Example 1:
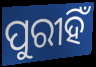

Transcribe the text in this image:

ପୁରୀହିଁ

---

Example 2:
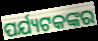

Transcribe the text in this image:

ପର୍ଯ୍ୟଟକଙ୍କର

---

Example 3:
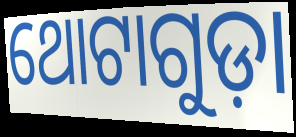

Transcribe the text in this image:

ଥୋଟାଗୁଡ଼ା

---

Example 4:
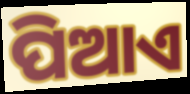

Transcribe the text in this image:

ପିଆଏ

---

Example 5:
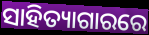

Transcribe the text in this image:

ସାହିତ୍ୟାଗାରରେ